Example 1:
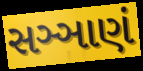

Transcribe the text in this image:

સઞ્ઞાણં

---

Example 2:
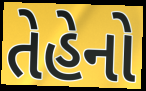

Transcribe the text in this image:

તેહેનો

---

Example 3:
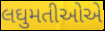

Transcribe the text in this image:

લઘુમતીઓએ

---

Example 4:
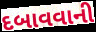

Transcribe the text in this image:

દબાવવાની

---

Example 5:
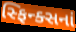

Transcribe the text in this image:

સ્ફિન્ક્સનાં